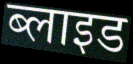
ब्लाइड